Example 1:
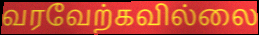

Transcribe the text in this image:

வரவேற்கவில்லை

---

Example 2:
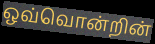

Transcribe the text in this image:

ஒவ்வொன்றின்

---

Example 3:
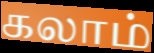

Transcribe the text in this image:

கலாம்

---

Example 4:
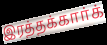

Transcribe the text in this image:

இரத்தக்கார்க்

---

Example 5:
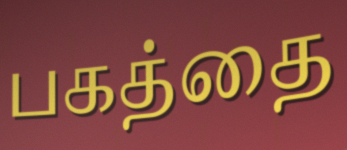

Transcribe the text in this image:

பகத்தை